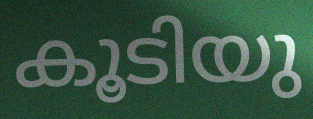
കൂടിയു